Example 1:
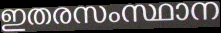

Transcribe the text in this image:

ഇതരസംസ്ഥാന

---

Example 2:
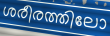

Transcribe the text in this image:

ശരീരത്തിലോ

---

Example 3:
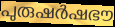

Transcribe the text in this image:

പുരുഷർഷഭൗ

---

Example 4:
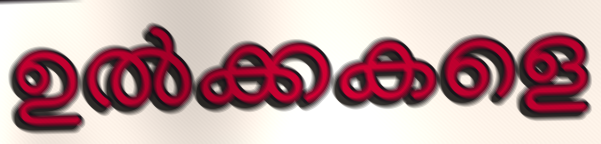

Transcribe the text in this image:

ഉൽക്കകളെ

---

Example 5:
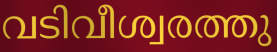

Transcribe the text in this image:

വടിവീശ്വരത്തു